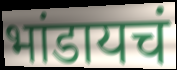
भांडायचं